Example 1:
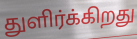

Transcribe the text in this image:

துளிர்க்கிறது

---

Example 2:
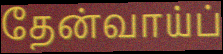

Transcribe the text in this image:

தேன்வாய்ப்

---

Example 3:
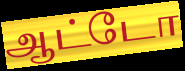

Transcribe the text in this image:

ஆட்டோ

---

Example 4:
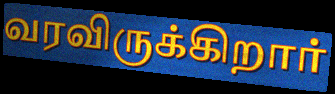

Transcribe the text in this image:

வரவிருக்கிறார்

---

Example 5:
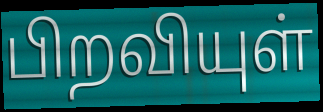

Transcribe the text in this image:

பிறவியுள்